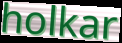
holkar